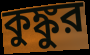
কুঙ্কুর